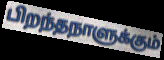
பிறந்தநாளுக்கும்